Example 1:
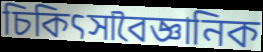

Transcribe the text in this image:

চিকিৎসাবৈজ্ঞানিক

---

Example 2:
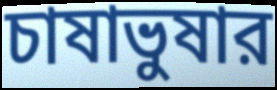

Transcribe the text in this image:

চাষাভুষার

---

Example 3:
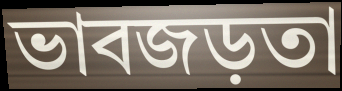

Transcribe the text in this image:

ভাবজড়তা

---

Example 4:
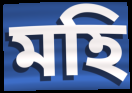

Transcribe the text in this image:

মহি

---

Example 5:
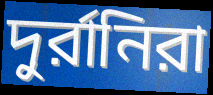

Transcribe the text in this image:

দুর্রানিরা